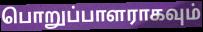
பொறுப்பாளராகவும்